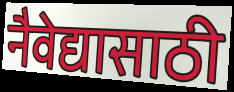
नैवेद्यासाठी